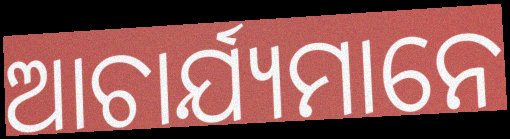
ଆଚାର୍ଯ୍ୟମାନେ